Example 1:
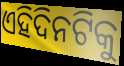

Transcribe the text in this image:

ଏହିଦିନଟିକୁ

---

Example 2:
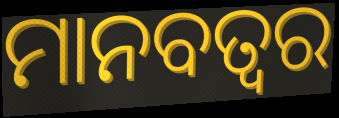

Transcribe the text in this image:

ମାନବତ୍ୱର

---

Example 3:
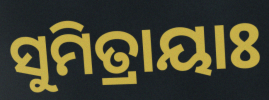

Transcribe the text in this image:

ସୁମିତ୍ରାୟାଃ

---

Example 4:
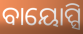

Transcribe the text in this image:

ବାୟୋପ୍ସି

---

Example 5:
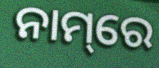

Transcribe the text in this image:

ନାମ୍‌ରେ